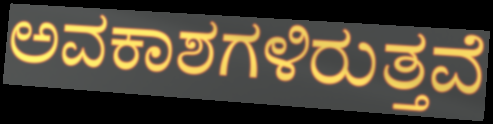
ಅವಕಾಶಗಳಿರುತ್ತವೆ